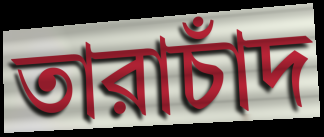
তারাচাঁদ